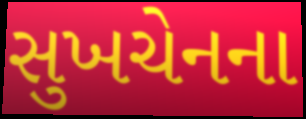
સુખચેનના